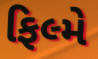
ફિલ્મે